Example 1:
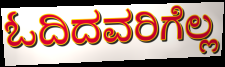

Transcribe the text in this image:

ಓದಿದವರಿಗೆಲ್ಲ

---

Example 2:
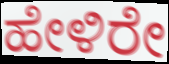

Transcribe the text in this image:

ಹೇಳಿರೇ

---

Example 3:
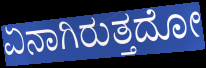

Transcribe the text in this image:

ಏನಾಗಿರುತ್ತದೋ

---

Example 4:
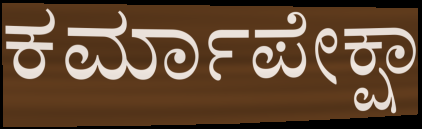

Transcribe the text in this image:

ಕರ್ಮಾಪೇಕ್ಷಾ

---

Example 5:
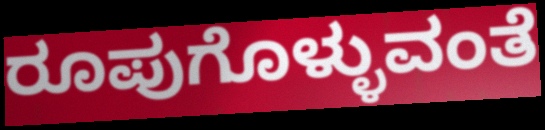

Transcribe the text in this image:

ರೂಪುಗೊಳ್ಳುವಂತೆ